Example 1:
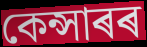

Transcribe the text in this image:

কেন্সাৰৰ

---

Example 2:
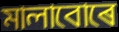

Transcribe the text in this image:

মালাবোৰে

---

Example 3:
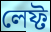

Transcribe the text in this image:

লেফ্ট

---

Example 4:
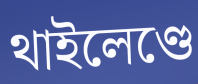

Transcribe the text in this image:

থাইলেণ্ডে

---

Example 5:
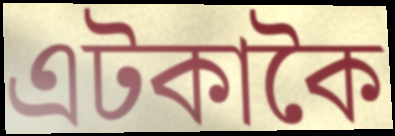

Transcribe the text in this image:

এটকাকৈ